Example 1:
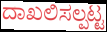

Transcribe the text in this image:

ದಾಖಲಿಸಲ್ಪಟ್ಟ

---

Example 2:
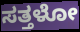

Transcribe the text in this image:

ಸತ್ತಳೋ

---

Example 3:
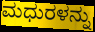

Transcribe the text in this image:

ಮಧುರಳನ್ನು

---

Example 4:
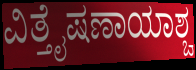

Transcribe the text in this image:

ವಿತ್ತೈಷಣಾಯಾಶ್ಚ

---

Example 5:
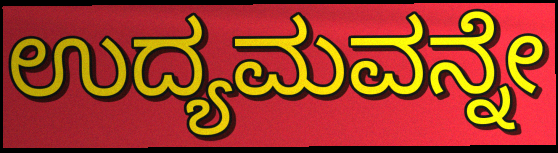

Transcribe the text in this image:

ಉದ್ಯಮವನ್ನೇ